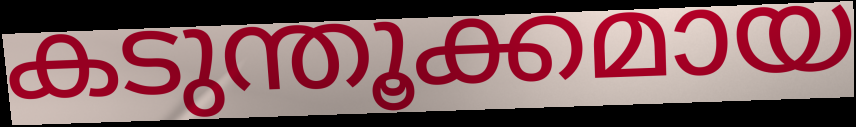
കടുന്തൂക്കമായ